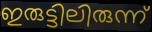
ഇരുട്ടിലിരുന്ന്